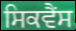
ਸਿਕਵੈਂਸ